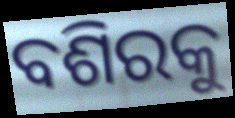
ବଶିରକୁ